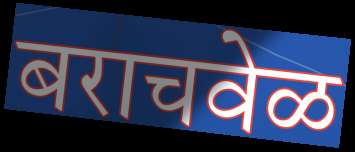
बराचवेळ